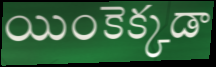
యింకెక్కడా